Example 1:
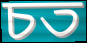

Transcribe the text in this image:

চত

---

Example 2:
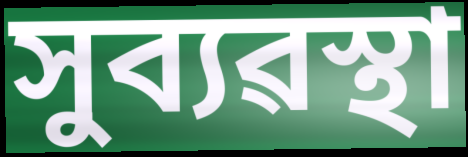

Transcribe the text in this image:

সুব্যৱস্থা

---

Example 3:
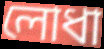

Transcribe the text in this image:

লোধা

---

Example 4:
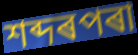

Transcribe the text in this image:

শব্দৰপৰা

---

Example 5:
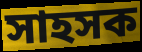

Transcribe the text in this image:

সাহসক